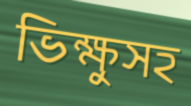
ভিক্ষুসহ